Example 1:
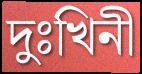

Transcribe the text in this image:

দুঃখিনী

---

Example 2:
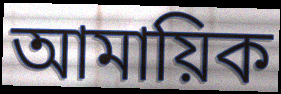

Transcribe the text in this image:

আমায়িক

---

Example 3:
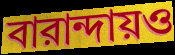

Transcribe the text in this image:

বারান্দায়ও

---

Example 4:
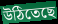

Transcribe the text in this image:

উঠিতেছে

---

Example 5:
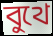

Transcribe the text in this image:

বুথে